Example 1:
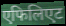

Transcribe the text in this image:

एफिलिएट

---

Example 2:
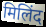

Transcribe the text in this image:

मिलिंद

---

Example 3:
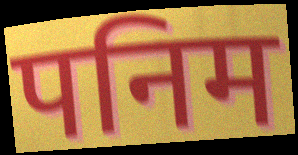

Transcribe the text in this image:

पनिम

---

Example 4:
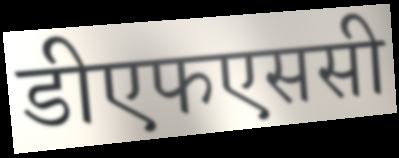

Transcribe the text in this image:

डीएफएससी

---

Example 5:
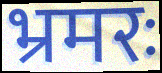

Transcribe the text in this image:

भ्रमरः